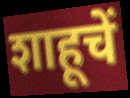
शाहूचें